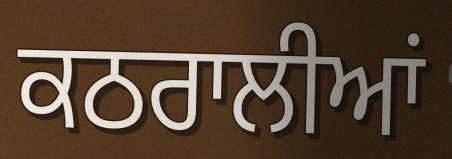
ਕਠਰਾਲੀਆਂ